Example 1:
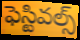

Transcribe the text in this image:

ఫెస్టివల్స్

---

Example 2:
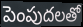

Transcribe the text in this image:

పెంపుదలతో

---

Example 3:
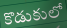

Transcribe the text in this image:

కొడుకులో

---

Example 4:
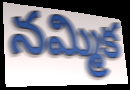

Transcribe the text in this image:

నమ్మిక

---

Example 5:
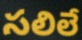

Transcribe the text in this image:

సలిలే